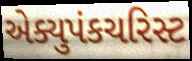
એક્યુપંકચરિસ્ટ